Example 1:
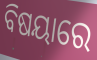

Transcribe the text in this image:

ବିଷୟାରେ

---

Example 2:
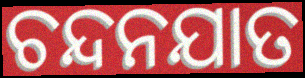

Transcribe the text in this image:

ଚନ୍ଦନଯାତ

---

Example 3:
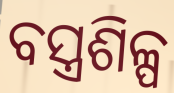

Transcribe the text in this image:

ବସ୍ତ୍ରଶିଳ୍ପ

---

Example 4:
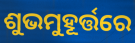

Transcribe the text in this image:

ଶୁଭମୁହୂର୍ତ୍ତରେ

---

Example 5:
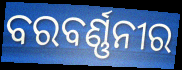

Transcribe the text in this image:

ବରବର୍ଣ୍ଣନୀର